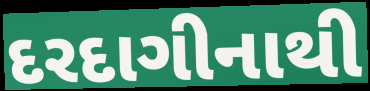
દરદાગીનાથી